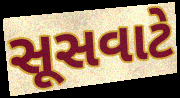
સૂસવાટે